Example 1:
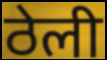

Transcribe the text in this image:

ठेली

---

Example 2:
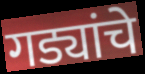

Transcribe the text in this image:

गड्यांचे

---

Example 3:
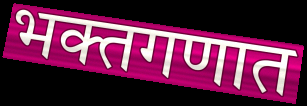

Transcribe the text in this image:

भक्तगणात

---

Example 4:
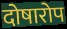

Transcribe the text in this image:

दोषारोप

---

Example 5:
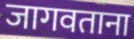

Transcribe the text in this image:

जागवताना